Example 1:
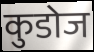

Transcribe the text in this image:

कुडोज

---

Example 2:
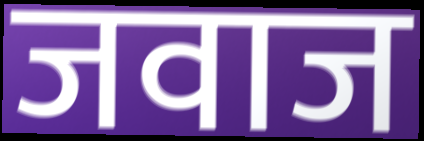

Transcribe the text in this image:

जवाज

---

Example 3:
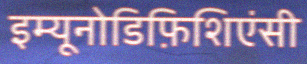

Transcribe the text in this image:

इम्यूनोडिफ़िशिएंसी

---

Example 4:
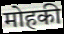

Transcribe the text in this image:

मोहकी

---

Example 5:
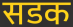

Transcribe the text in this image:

सडक